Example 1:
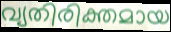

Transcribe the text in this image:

വ്യതിരിക്തമായ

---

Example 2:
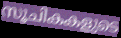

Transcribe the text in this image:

സൂചികകളുടെ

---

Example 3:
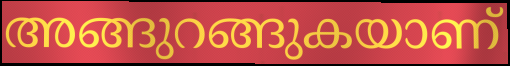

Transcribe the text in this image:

അങ്ങുറങ്ങുകയാണ്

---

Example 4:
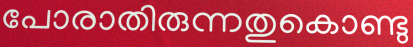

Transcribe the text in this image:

പോരാതിരുന്നതുകൊണ്ടു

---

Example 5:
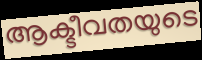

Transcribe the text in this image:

ആക്ടീവതയുടെ